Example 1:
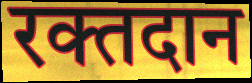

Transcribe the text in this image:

रक्तदान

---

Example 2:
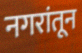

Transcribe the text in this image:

नगरांतून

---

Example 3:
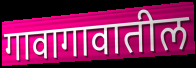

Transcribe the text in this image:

गावागावातील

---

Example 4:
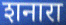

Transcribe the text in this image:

शनारा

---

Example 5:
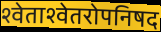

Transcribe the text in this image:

श्वेताश्वेतरोपनिषद